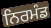
ਨਿਰਮੰਡ